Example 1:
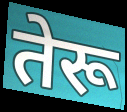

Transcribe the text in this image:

तेरू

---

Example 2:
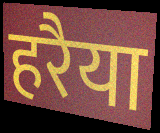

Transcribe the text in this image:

हरैया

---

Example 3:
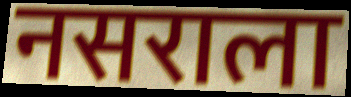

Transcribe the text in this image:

नसराला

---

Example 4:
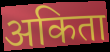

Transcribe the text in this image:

अकिता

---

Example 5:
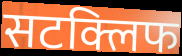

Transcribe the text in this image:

सटक्लिफ